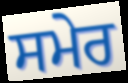
ਸਮੇਰ